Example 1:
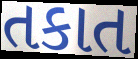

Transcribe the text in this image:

તકાત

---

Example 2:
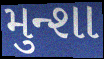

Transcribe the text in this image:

મુન્શા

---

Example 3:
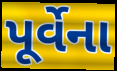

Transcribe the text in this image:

પૂર્વેના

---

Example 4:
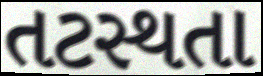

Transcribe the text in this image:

તટસ્થતા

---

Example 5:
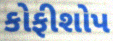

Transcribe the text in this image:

કોફીશોપ